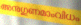
അനുഗുണമാംവിധം